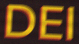
DEI